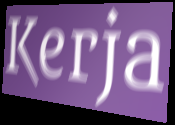
Kerja